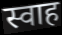
स्वाह